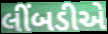
લીંબડીએ